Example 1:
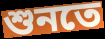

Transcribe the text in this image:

শুনতে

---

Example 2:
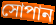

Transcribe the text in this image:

সোপান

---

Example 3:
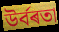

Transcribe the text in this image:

উৰ্বৰতা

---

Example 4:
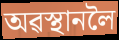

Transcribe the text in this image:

অৱস্থানলৈ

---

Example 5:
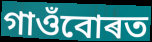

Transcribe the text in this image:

গাওঁবোৰত